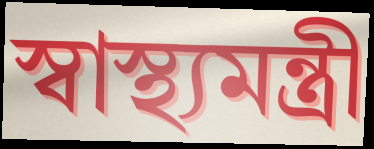
স্বাস্থ্যমন্ত্রী